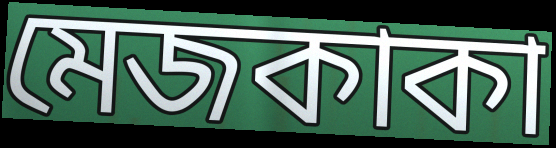
মেজকাকা